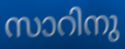
സാറിനു